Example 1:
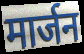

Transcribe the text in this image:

मार्जन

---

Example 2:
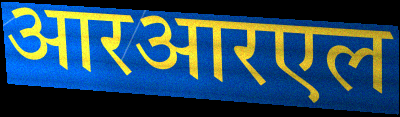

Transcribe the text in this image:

आरआरएल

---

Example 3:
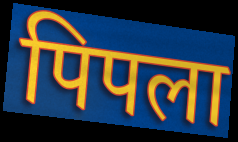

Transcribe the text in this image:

पिपला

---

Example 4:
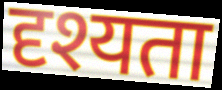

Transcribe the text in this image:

दृश्यता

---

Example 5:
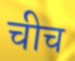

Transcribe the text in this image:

चीच